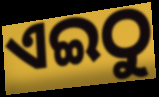
ଏଇଠୁ